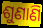
ଶୁଣାଣି